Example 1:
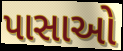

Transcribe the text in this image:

પાસાઓ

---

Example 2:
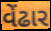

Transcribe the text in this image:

વેંઢાર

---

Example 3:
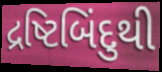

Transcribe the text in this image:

દ્રષ્ટિબિંદુથી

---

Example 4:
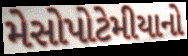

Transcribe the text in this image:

મેસોપોટેમીયાનો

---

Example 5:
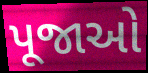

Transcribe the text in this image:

પૂજાઓ